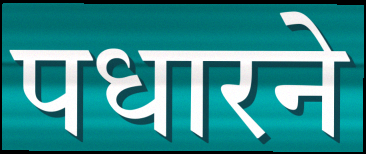
पधारने